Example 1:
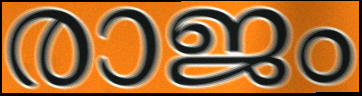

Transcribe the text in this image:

രാജം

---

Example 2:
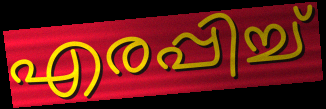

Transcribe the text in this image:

എരപ്പിച്ച്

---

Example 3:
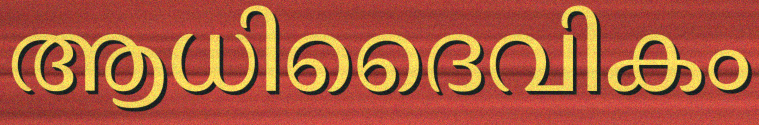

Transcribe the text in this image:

ആധിദൈവികം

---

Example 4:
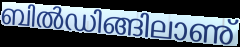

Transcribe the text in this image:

ബിൽഡിങ്ങിലാണു്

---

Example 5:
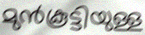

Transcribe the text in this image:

മുൻകൂട്ടിയുള്ള